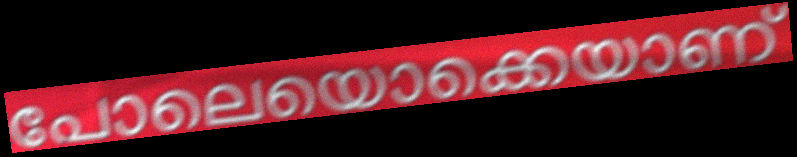
പോലെയൊക്കെയാണ്